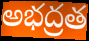
అభద్రత